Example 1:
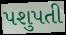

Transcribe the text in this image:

પશુપતી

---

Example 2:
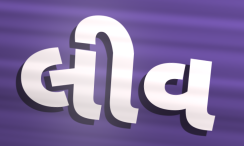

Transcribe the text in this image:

લીવ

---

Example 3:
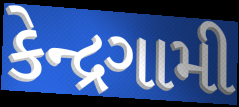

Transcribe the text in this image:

કેન્દ્રગામી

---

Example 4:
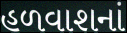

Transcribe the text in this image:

હળવાશનાં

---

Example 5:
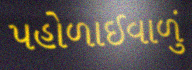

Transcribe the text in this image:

પહોળાઈવાળું